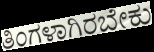
ತಿಂಗಳಾಗಿರಬೇಕು